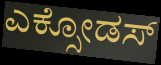
ಎಕ್ಸೋಡಸ್